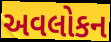
અવલોકન